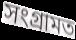
সংগ্ৰামত